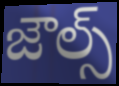
జౌల్స్